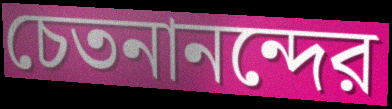
চেতনানন্দের